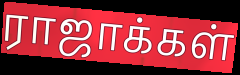
ராஜாக்கள்